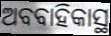
ଅବବାହିକାସ୍ଥ